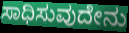
ಸಾಧಿಸುವುದೇನು